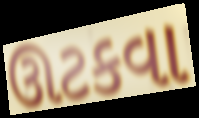
ઊટકવા